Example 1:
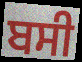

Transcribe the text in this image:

ਬਸੀ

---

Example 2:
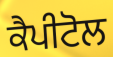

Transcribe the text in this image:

ਕੈਪੀਟੋਲ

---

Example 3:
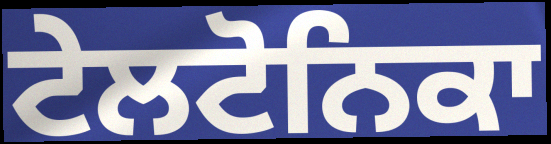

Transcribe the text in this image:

ਟੇਲਟੋਨਿਕਾ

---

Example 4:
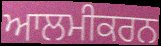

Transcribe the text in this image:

ਆਲਮੀਕਰਨ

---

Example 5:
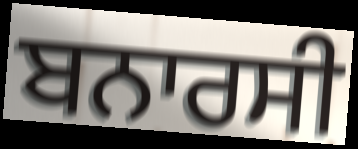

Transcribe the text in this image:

ਬਨਾਰਸੀ